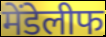
मेंडेलीफ